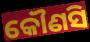
କୌଣସି